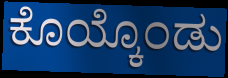
ಕೊಯ್ಕೊಂಡು